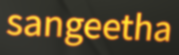
sangeetha